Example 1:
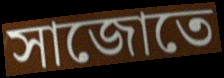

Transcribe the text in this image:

সাজোতে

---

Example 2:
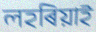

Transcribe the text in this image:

লহৰিয়াই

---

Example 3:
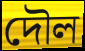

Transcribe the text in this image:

দৌল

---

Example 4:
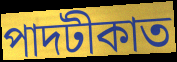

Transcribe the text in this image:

পাদটীকাত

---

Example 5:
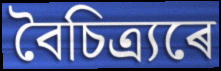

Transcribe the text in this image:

বৈচিত্ৰ্যৰে